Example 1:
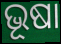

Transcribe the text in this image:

ଭୂଷା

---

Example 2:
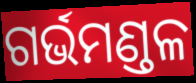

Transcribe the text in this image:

ଗର୍ଭମଣ୍ଡଳ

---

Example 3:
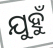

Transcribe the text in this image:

ଯୁହୁଁ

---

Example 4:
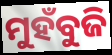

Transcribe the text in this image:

ମୁହଁବୁଜି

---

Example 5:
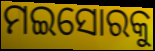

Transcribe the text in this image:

ମଇସୋରକୁ